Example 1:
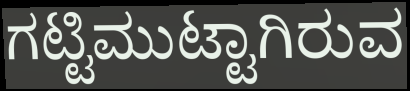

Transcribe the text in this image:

ಗಟ್ಟಿಮುಟ್ಟಾಗಿರುವ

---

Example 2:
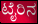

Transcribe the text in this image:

ಟೈರಿನ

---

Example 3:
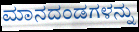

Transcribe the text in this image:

ಮಾನದಂಡಗಳನ್ನು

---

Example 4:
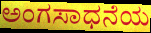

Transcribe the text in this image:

ಅಂಗಸಾಧನೆಯ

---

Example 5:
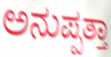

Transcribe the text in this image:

ಅನುಪ್ಪತ್ತಾ